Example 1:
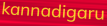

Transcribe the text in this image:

kannadigaru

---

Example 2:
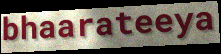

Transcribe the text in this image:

bhaarateeya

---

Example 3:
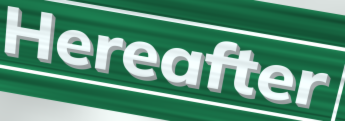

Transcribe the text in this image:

Hereafter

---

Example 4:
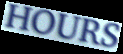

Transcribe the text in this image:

HOURS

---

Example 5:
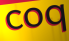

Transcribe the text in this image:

coq